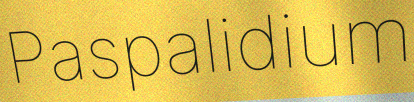
Paspalidium